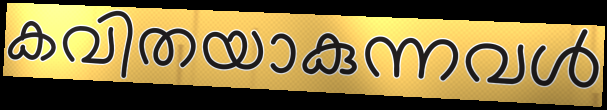
കവിതയാകുന്നവൾ